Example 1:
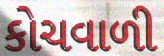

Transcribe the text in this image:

કોચવાળી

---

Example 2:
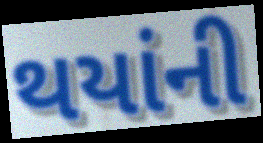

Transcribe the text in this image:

થયાંની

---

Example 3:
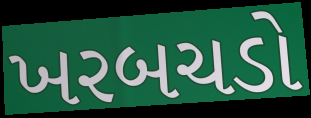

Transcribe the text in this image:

ખરબચડો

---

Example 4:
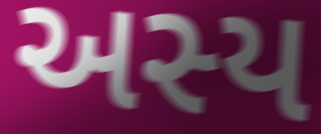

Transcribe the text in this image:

અસ્ય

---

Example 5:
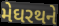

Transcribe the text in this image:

મેઘરથને